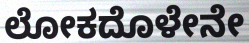
ಲೋಕದೊಳೇನೇ